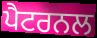
ਪੈਟਰਨਲ